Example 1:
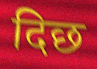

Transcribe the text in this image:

दिछ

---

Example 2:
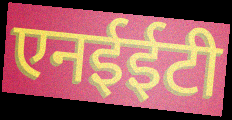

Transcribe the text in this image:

एनईईटी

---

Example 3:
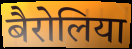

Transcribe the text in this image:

बैरोलिया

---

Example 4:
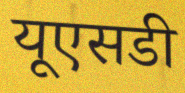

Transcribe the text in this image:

यूएसडी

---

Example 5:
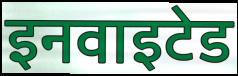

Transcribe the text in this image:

इनवाइटेड